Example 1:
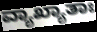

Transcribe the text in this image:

ವ್ಯಾಖ್ಯಾತಾಃ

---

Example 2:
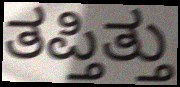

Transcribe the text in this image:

ತಪ್ತಿತ್ತು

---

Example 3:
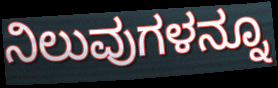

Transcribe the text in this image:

ನಿಲುವುಗಳನ್ನೂ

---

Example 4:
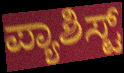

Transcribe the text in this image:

ಪ್ಯಾಶಿಸ್ಟ್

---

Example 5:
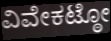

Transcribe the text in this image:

ವಿವೇಕಟ್ಠೋ